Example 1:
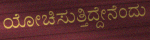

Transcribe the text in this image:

ಯೋಚಿಸುತ್ತಿದ್ದೇನೆಂದು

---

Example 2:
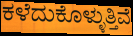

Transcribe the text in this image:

ಕಳೆದುಕೊಳ್ಳುತ್ತಿವೆ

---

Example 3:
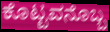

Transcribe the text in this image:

ಕೊಟ್ಟವನೊಬ್ಬ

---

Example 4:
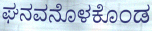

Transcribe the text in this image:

ಘನವನೊಳಕೊಂಡ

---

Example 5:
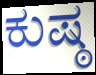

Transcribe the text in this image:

ಕುಷ್ಠ